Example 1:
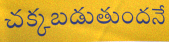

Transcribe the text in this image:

చక్కబడుతుందనే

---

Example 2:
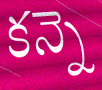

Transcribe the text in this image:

కన్నె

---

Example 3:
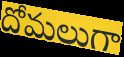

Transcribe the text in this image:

దోమలుగా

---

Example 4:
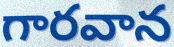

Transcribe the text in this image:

గారవాన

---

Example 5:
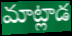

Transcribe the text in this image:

మాట్లాడ